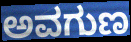
ಅವಗುಣ